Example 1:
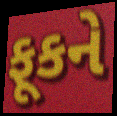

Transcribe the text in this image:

ફૂકને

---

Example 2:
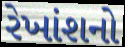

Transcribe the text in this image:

રેખાંશનો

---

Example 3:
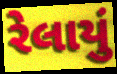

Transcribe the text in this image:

રેલાયું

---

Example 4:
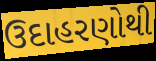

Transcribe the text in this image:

ઉદાહરણોથી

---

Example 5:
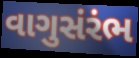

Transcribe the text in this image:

વાગુસંરંભ